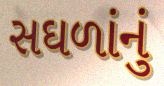
સઘળાંનું